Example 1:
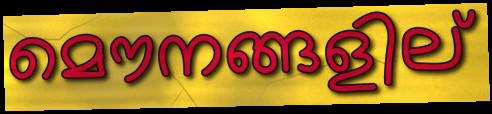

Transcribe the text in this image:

മൌനങ്ങളില്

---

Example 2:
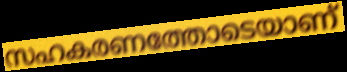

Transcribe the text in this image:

സഹകരണത്തോടെയാണ്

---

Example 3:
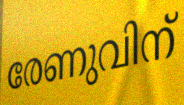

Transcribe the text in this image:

രേണുവിന്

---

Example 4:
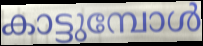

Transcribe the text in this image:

കാട്ടുമ്പോൾ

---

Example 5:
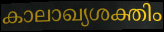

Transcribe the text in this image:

കാലാഖ്യശക്തിം